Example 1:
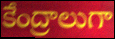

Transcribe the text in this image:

కేంద్రాలుగా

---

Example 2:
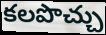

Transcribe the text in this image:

కలపొచ్చు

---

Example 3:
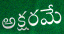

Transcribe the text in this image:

అక్షరమే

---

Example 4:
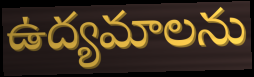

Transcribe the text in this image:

ఉద్యమాలను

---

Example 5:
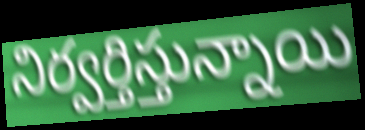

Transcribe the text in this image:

నిర్వర్తిస్తున్నాయి